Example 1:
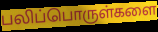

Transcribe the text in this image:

பலிப்பொருள்களை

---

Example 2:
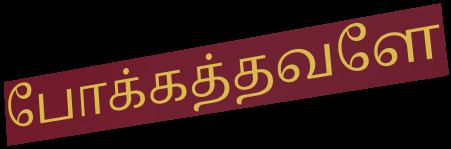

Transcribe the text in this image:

போக்கத்தவளே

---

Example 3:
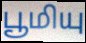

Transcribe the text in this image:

பூமியு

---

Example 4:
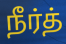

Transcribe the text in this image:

நீர்த்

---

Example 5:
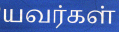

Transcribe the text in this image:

யவர்கள்